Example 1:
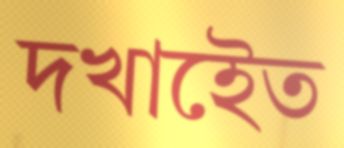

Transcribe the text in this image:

দখাইেত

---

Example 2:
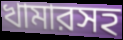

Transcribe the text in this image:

খামারসহ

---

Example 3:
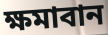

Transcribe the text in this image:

ক্ষমাবান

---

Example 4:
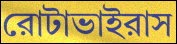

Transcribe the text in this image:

রোটাভাইরাস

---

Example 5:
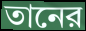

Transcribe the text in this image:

তানের